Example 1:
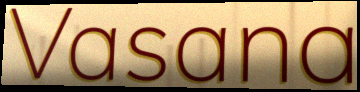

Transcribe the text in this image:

Vasana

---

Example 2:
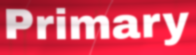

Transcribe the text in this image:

Primary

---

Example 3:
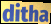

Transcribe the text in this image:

ditha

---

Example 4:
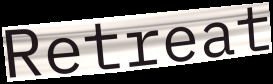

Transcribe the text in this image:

Retreat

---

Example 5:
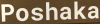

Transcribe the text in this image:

Poshaka